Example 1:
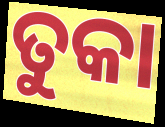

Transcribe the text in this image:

ତୁକା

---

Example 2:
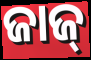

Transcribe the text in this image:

ଜାଜ୍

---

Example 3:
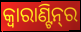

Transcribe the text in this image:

କ୍ବାରାଣ୍ଟିନ୍‌ର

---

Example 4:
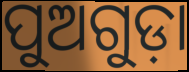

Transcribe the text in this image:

ପୁଅଗୁଡ଼ା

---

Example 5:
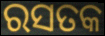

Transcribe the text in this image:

ରସତକ